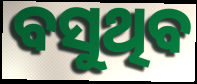
ବସୁଥିବ